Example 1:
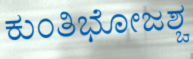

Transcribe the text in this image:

ಕುಂತಿಭೋಜಶ್ಚ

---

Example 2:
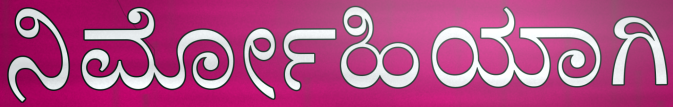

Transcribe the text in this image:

ನಿರ್ಮೋಹಿಯಾಗಿ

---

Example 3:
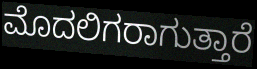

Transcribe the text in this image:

ಮೊದಲಿಗರಾಗುತ್ತಾರೆ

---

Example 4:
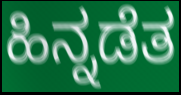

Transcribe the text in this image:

ಹಿನ್ನಡೆತ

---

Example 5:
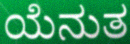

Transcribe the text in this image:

ಯೆನುತ